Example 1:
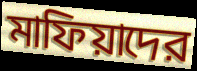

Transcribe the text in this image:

মাফিয়াদের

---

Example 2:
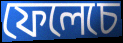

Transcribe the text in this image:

ফেলেচে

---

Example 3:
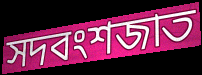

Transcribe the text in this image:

সদবংশজাত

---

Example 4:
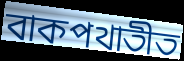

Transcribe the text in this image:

বাকপথাতীত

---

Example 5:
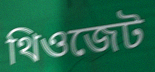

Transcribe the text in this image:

থিওজেট